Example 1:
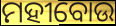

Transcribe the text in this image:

ମହୀବୋଉ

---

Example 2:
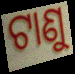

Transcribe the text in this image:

ଟାଣୁ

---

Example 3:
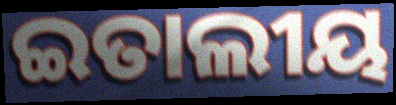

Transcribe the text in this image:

ଇତାଲୀୟ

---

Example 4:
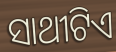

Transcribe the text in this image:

ସାଥୀଟିଏ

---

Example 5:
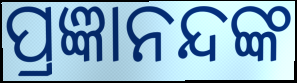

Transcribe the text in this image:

ପ୍ରଜ୍ଞାନନ୍ଦଙ୍କ